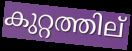
കുറ്റത്തില്